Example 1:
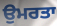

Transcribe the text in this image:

ਉਮਰਤਾ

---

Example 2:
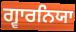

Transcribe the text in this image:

ਗ੍ਵਾਰਨਿਯਾ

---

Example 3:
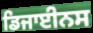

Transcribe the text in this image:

ਡਿਜਾਈਨਸ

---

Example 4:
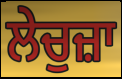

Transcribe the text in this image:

ਲੇਚੁਜ਼ਾ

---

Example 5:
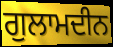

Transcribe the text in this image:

ਗੁਲਾਮਦੀਨ